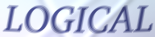
LOGICAL